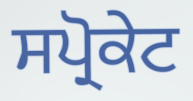
ਸਪ੍ਰੋਕੇਟ